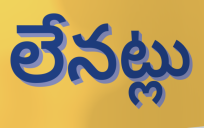
లేనట్లు